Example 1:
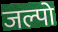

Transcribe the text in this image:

जल्पो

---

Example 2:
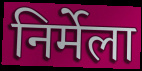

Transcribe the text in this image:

निर्मेला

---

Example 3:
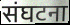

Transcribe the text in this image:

संघटना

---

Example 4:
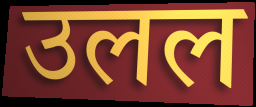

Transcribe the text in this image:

उलल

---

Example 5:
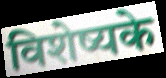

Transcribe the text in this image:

विशेष्यके